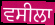
ਵਸੀਲਾ